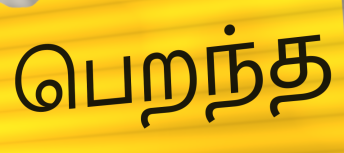
பெறந்த